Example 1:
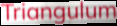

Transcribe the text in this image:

Triangulum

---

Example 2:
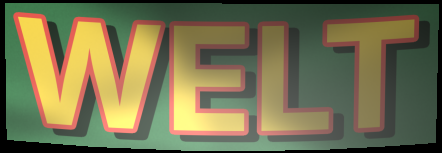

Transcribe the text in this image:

WELT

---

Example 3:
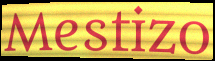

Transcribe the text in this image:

Mestizo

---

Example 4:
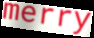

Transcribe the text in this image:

merry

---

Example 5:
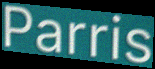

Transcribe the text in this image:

Parris